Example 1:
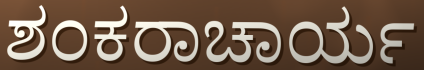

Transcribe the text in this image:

ಶಂಕರಾಚಾರ್ಯ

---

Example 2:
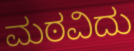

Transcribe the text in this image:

ಮಠವಿದು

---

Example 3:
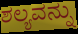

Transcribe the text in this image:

ಶಲ್ಯವನ್ನು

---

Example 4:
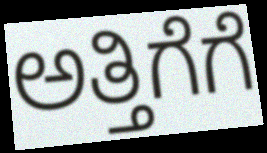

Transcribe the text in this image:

ಅತ್ತಿಗೆಗೆ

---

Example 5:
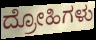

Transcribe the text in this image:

ದ್ರೋಹಿಗಳು